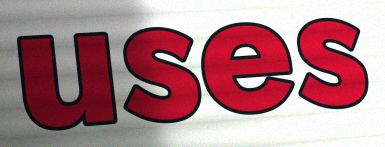
uses